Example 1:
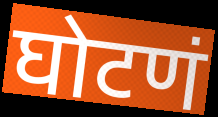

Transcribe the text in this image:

घोटणं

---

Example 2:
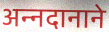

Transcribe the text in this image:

अन्नदानाने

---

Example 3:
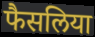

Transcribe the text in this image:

फैसलिया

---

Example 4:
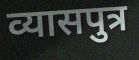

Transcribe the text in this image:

व्यासपुत्र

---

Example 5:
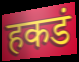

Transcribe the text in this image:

हकडं